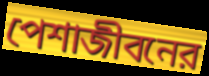
পেশাজীবনের